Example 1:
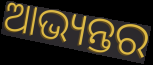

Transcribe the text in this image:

ଆଭ୍ୟନ୍ତର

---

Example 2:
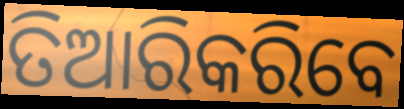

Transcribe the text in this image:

ତିଆରିକରିବେ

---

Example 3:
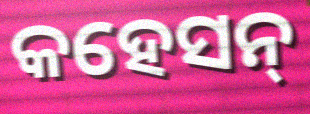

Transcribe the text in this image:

କହେସନ୍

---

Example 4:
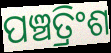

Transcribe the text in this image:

ପଞ୍ଚତ୍ରିଂଶ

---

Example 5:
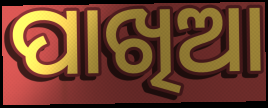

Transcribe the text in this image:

ପାଖିଆ